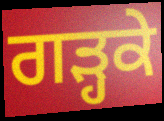
ਗੜ੍ਹਕੇ